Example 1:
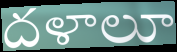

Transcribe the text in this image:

దళాలూ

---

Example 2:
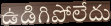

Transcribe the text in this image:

ఉడిగిపోలేదు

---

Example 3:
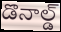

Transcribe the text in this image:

డొనాల్డ్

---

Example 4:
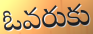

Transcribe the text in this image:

ఓవరుకు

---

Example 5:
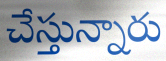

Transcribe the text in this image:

చేస్తున్నారు